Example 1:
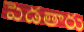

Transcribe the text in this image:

పెడతారు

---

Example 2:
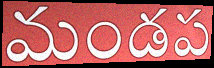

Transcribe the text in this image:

మండప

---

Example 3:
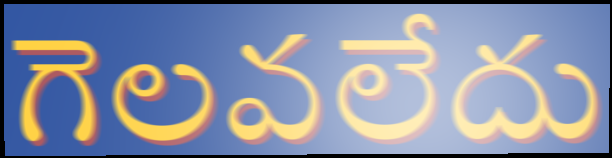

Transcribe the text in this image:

గెలవలేదు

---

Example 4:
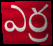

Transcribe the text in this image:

ఎర్ర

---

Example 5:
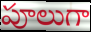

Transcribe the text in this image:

పూలుగా